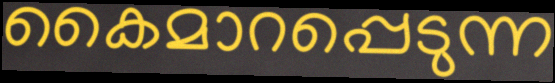
കൈമാറപ്പെടുന്ന